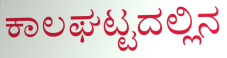
ಕಾಲಘಟ್ಟದಲ್ಲಿನ